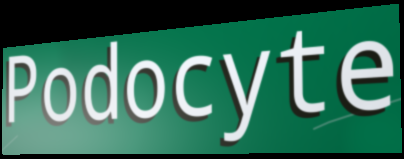
Podocyte